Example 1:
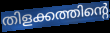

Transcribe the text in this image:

തിളക്കത്തിന്റെ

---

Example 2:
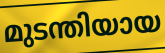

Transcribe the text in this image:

മുടന്തിയായ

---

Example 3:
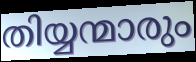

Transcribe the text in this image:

തിയ്യന്മാരും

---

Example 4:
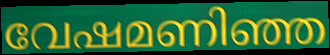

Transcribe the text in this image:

വേഷമണിഞ്ഞ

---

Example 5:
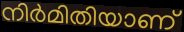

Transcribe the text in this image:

നിർമിതിയാണ്